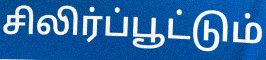
சிலிர்ப்பூட்டும்